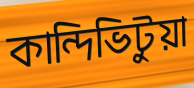
কান্দিভিটুয়া